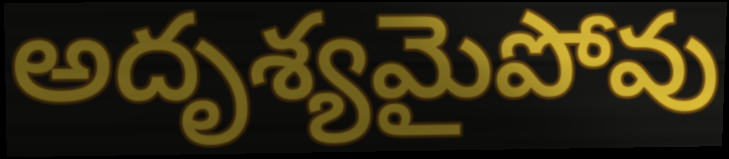
అదృశ్యమైపోవు